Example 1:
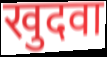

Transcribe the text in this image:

खुदवा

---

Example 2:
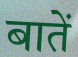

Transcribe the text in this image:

बातें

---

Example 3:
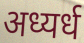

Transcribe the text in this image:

अध्यर्ध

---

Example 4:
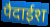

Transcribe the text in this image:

पैदाईश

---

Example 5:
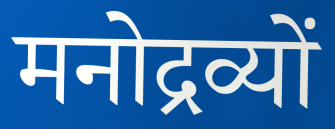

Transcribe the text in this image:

मनोद्रव्यों